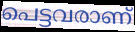
പെട്ടവരാണ്